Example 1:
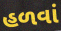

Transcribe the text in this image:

હળવાં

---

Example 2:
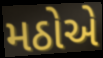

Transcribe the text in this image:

મઠોએ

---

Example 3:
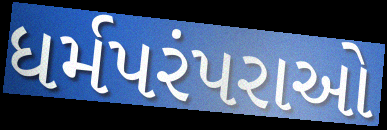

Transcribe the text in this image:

ધર્મપરંપરાઓ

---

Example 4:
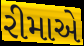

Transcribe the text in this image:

રીમાએ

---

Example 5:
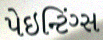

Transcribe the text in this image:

પેઇન્ટિંગ્સ